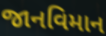
જાનવિમાન